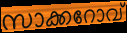
സാക്കറോവ്